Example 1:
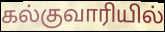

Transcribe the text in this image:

கல்குவாரியில்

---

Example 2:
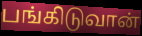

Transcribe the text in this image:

பங்கிடுவான்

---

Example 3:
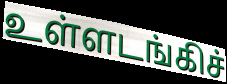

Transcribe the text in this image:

உள்ளடங்கிச்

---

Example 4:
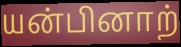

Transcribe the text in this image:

யன்பினாற்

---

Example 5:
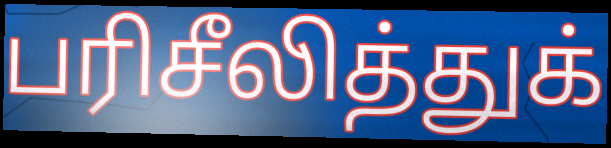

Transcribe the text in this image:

பரிசீலித்துக்